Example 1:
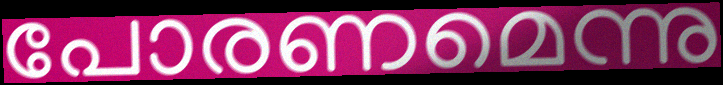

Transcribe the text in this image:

പോരണമെന്നു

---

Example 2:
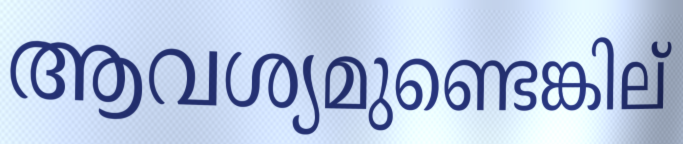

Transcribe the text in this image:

ആവശ്യമുണ്ടെങ്കില്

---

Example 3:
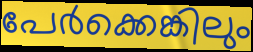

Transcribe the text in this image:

പേർക്കെങ്കിലും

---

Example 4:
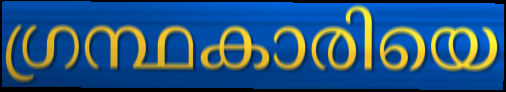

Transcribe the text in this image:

ഗ്രന്ഥകാരിയെ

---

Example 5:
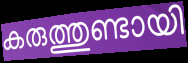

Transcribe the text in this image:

കരുത്തുണ്ടായി